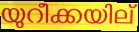
യുറീക്കയില്